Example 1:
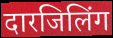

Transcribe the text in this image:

दारजिलिंग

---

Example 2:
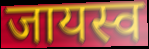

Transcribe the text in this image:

जायस्व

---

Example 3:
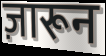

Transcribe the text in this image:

ज़ारून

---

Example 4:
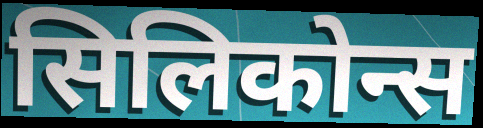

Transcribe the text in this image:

सिलिकोन्स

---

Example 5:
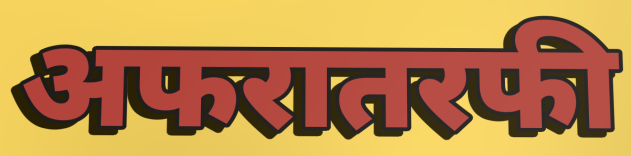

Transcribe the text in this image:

अफरातरफी